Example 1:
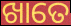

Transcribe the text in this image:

ଖାତେ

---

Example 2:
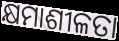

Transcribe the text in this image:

କ୍ଷମାଶୀଳତା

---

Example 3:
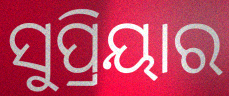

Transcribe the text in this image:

ସୁପ୍ରିୟାର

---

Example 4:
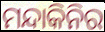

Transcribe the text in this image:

ମନ୍ଦାକିନିର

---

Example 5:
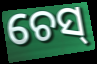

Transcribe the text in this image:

ଚେସ୍